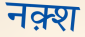
नक़्श